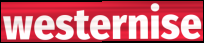
westernise